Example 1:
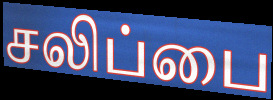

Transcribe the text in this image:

சலிப்பை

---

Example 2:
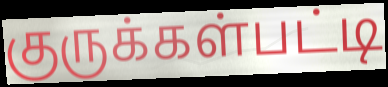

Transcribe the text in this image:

குருக்கள்பட்டி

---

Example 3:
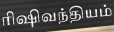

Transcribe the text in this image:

ரிஷிவந்தியம்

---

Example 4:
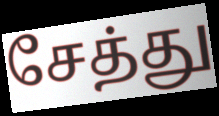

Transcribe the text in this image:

சேத்து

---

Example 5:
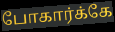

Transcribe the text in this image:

போகார்க்கே